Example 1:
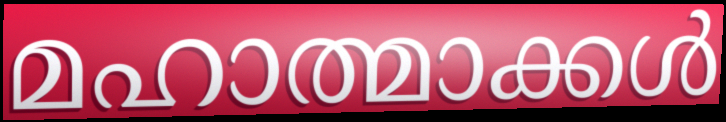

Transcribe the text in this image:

മഹാത്മാക്കൾ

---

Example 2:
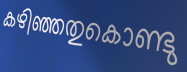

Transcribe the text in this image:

കഴിഞ്ഞതുകൊണ്ടു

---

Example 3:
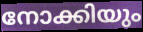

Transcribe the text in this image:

നോക്കിയും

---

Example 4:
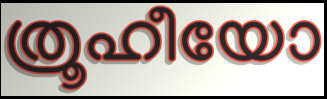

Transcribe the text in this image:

ത്രൂഹീയോ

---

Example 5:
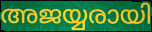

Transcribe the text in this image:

അജയ്യരായി